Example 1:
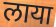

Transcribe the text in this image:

लाया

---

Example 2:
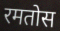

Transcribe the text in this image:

रमतोस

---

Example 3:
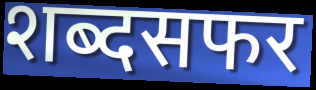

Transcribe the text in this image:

शब्दसफर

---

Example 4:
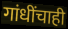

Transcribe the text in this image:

गांधींचाही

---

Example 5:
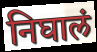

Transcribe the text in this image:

निघालं